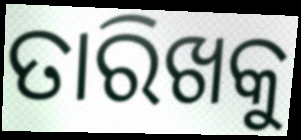
ତାରିଖକୁ